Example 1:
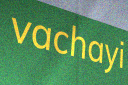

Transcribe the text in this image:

vachayi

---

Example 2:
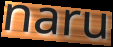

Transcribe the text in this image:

naru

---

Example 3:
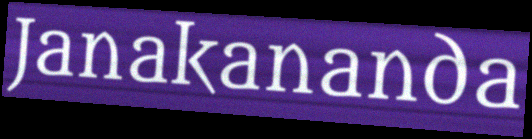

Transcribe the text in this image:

Janakananda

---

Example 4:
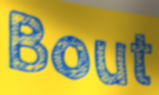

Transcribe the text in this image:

Bout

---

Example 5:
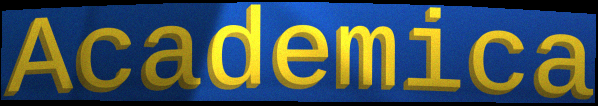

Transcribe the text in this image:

Academica